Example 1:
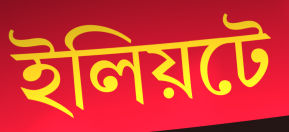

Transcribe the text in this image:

ইলিয়টে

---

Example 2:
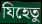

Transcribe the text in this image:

যিহেতু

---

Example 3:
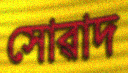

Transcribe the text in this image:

সোৱাদ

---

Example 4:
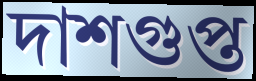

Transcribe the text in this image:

দাশগুপ্ত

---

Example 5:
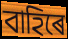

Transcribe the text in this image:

বাহিৰে